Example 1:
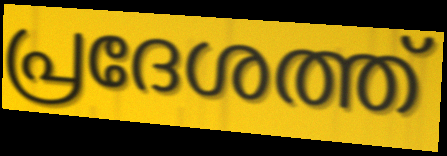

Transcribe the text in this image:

പ്രദേശത്ത്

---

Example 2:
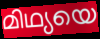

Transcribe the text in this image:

മിഥ്യയെ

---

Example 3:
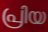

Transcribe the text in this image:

പ്രിയ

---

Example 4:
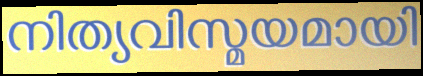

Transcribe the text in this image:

നിത്യവിസ്മയമായി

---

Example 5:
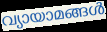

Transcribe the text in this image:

വ്യായാമങ്ങൾ